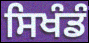
ਸਿਖੰਡੰ